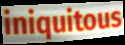
iniquitous